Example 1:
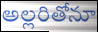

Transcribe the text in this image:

అల్లరితోనూ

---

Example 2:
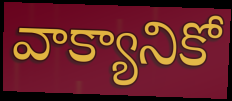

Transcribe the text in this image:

వాక్యానికో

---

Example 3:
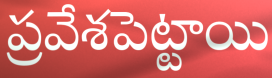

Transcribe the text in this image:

ప్రవేశపెట్టాయి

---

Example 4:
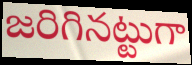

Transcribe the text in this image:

జరిగినట్టుగా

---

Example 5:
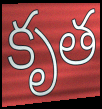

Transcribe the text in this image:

కృత